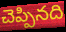
చెప్పినది